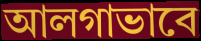
আলগাভাবে